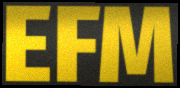
EFM